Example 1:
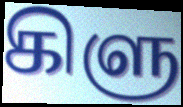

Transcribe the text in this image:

கிளு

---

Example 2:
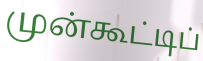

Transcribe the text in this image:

முன்கூட்டிப்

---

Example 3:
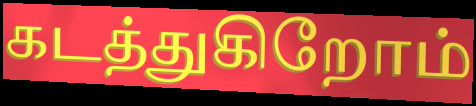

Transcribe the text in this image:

கடத்துகிறோம்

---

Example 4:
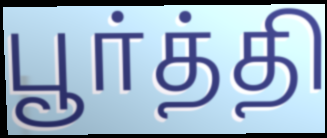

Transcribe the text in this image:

பூர்த்தி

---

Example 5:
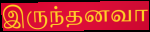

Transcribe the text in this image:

இருந்தனவா